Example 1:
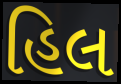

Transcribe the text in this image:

હિલ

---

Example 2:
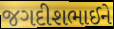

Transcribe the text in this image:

જગદીશભાઈને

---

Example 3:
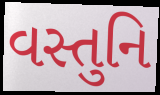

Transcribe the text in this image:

વસ્તુનિ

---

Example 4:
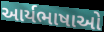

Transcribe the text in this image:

આર્યભાષાઓ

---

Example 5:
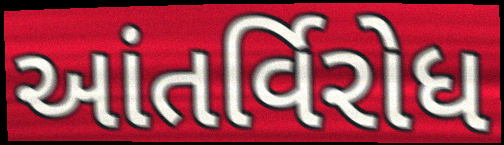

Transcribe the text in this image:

આંતર્વિરોધ